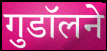
गुडॉलने